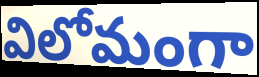
విలోమంగా